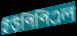
ইউপিপিএল